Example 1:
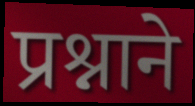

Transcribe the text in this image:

प्रश्नाने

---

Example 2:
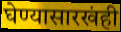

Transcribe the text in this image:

घेण्यासारखंही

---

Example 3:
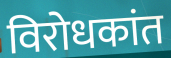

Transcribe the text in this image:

विरोधकांत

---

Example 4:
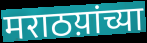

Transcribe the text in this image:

मराठय़ांच्या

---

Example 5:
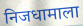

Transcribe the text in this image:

निजधामाला